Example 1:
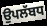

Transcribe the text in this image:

ਉਪਲੱਬਧ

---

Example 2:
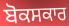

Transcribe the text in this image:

ਬੋਕਸਕਾਰ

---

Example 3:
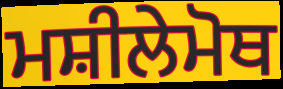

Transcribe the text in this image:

ਮਸ਼ੀਲੇਮੋਥ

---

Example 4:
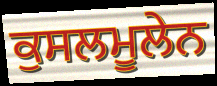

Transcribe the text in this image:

ਕੁਸਲਮੂਲੇਨ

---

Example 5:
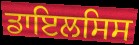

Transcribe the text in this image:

ਡਾਇਲਸਿਸ